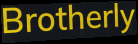
Brotherly